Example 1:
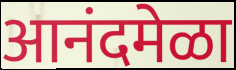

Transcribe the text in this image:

आनंदमेळा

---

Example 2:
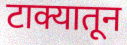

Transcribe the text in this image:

टाक्यातून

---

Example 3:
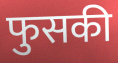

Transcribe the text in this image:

फुसकी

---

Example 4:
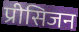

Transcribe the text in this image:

प्रीसिजन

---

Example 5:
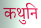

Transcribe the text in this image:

कथुनि